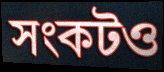
সংকটও